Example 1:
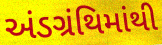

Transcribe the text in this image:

અંડગ્રંથિમાંથી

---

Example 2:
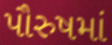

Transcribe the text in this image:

પૌરુષમાં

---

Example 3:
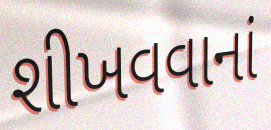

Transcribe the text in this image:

શીખવવાનાં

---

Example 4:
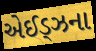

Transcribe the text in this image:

એઈડ્ઝના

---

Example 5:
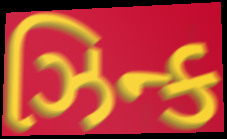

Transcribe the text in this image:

ઝિન્ક